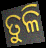
ତୁଳି